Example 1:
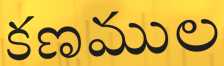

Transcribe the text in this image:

కణముల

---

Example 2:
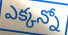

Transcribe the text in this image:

ఎక్కన్నో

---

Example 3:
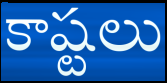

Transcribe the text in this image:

కాష్టలు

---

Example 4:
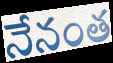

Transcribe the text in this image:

నేనంత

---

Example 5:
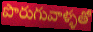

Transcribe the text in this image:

పొరుగువాళ్ళతో